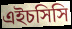
এইচসিসি